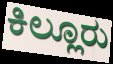
ಕಿಲ್ಲೂರು